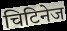
चिटिनेज